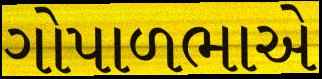
ગોપાળભાએ